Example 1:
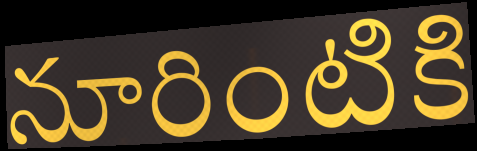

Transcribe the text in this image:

నూరింటికి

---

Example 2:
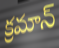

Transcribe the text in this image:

క్రమాన్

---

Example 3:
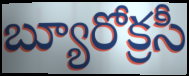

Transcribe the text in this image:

బ్యూరోక్రసీ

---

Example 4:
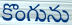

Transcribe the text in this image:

కొంగును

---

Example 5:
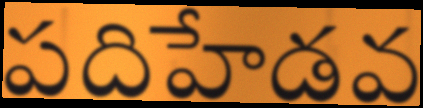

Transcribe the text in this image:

పదిహేడవ